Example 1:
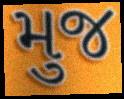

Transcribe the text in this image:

મુજ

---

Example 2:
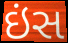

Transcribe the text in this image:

ઇંસ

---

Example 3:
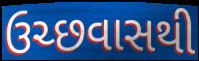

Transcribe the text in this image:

ઉચ્છવાસથી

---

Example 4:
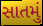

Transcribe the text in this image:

સાતમું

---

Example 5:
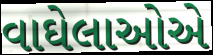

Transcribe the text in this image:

વાઘેલાઓએ